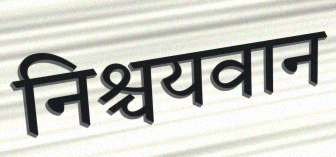
निश्चयवान